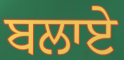
ਬਲਾਏ